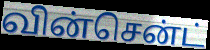
வின்சென்ட்